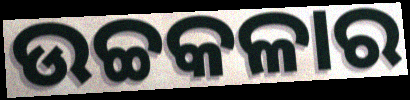
ଉଚ୍ଚକଳାର